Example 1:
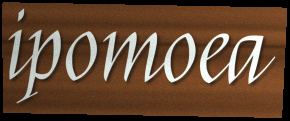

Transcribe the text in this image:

ipomoea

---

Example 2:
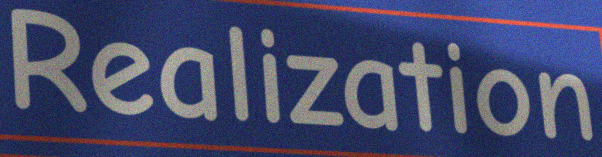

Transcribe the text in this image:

Realization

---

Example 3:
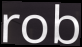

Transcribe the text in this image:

rob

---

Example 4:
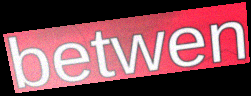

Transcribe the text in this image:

betwen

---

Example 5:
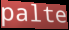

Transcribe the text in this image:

palte